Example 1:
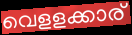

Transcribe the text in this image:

വെളളക്കാര്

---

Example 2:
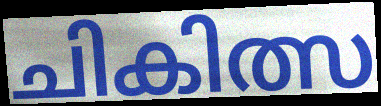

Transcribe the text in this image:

ചികിത്സ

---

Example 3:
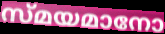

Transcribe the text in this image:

സ്മയമാനോ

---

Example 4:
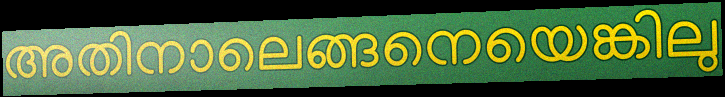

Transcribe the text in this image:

അതിനാലെങ്ങനെയെങ്കിലു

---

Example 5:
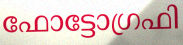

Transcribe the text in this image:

ഫോട്ടോഗ്രഫി